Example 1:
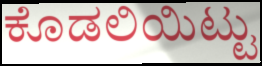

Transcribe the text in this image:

ಕೊಡಲಿಯಿಟ್ಟು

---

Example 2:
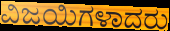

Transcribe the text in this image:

ವಿಜಯಿಗಳಾದರು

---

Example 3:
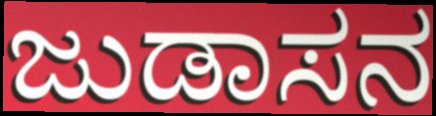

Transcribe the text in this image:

ಜುಡಾಸನ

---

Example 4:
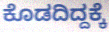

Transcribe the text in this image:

ಕೊಡದಿದ್ದಕ್ಕೆ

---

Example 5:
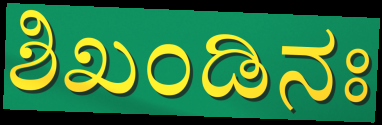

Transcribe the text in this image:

ಶಿಖಂಡಿನಃ